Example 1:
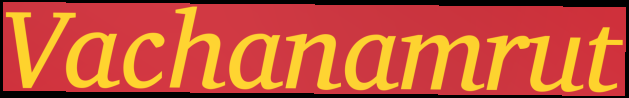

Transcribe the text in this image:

Vachanamrut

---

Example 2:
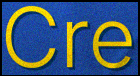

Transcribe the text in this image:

Cre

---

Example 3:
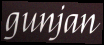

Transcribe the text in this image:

gunjan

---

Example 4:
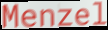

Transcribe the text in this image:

Menzel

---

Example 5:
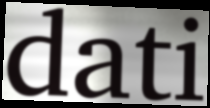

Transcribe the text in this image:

dati